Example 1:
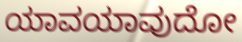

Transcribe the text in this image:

ಯಾವಯಾವುದೋ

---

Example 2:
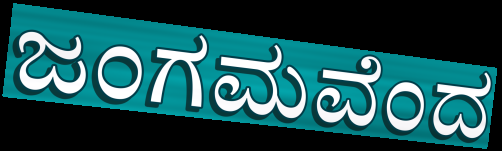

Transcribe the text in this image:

ಜಂಗಮವೆಂದ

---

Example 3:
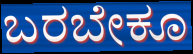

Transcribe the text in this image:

ಬರಬೇಕೂ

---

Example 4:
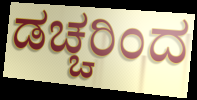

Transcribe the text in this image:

ಡಚ್ಚರಿಂದ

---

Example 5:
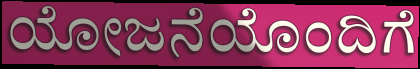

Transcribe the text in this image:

ಯೋಜನೆಯೊಂದಿಗೆ